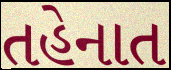
તહેનાત